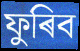
ফুৰিব